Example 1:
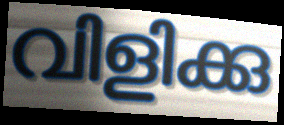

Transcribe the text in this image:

വിളിക്കു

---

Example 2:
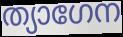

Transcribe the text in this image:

ത്യാഗേന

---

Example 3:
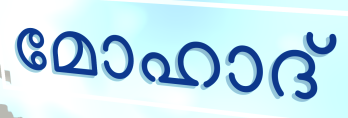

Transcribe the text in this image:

മോഹാദ്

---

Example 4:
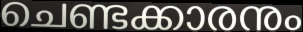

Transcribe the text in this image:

ചെണ്ടക്കാരനും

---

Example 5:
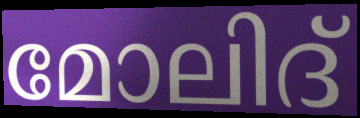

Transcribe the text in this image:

മോലിദ്